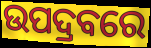
ଉପଦ୍ରବରେ